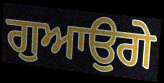
ਗੁਆਉਗੇ